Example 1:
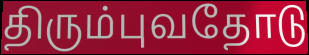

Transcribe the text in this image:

திரும்புவதோடு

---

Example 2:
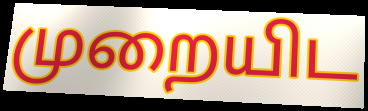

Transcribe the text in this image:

முறையிட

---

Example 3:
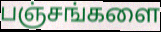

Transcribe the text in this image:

பஞ்சங்களை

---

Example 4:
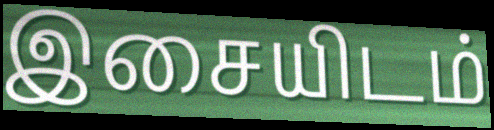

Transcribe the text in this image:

இசையிடம்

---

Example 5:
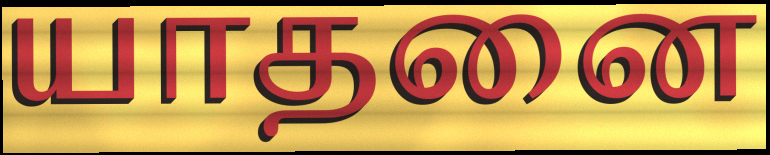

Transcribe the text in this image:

யாதனை